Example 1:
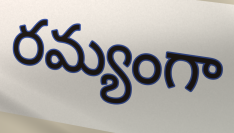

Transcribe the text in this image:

రమ్యంగా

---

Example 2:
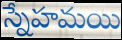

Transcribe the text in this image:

స్నేహమయి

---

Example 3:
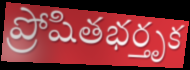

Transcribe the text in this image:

ప్రోషితభర్తృక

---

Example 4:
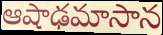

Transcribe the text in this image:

ఆషాఢమాసాన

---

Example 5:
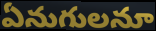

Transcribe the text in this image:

ఏనుగులనూ